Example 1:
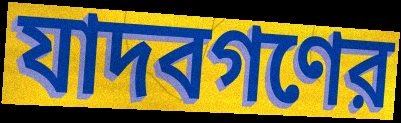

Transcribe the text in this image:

যাদবগণের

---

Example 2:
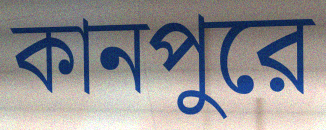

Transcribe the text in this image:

কানপুরে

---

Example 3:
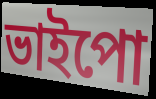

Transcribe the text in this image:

ভাইপো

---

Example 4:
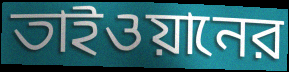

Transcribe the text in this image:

তাইওয়ানের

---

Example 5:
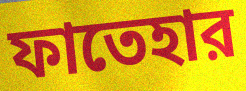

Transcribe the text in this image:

ফাতেহার